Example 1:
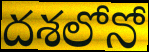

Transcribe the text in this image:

దశలోనో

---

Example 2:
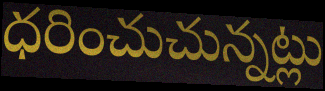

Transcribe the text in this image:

ధరించుచున్నట్లు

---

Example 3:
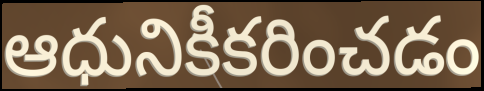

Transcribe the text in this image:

ఆధునికీకరించడం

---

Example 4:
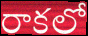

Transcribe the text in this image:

రాకలో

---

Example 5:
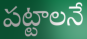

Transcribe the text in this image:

పట్టాలనే